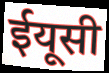
ईयूसी